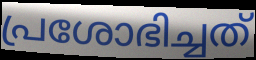
പ്രശോഭിച്ചത്